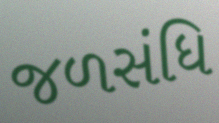
જળસંધિ